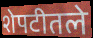
शेपटीतले